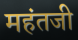
महंतजी